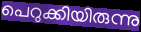
പെറുക്കിയിരുന്നു